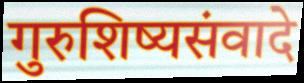
गुरुशिष्यसंवादे